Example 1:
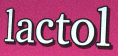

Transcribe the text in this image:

lactol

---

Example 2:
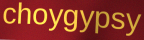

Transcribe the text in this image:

choygypsy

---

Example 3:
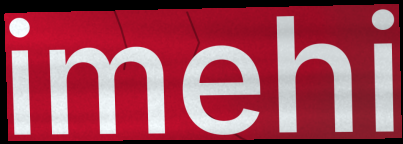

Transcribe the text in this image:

imehi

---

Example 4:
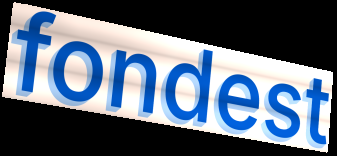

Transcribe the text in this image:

fondest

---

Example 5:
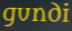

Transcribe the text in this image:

gundi